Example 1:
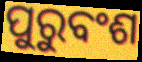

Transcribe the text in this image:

ପୁରୁବଂଶ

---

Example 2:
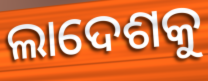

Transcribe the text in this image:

ଲାଦେଶକୁ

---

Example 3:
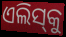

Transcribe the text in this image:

ଏଲିସ୍‌କୁ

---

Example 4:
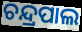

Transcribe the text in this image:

ଚନ୍ଦ୍ରପାଲ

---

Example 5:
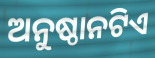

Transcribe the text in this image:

ଅନୁଷ୍ଠାନଟିଏ